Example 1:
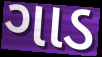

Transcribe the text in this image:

ગાડ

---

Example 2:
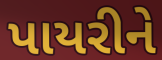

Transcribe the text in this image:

પાયરીને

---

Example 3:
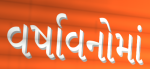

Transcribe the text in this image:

વર્ષાવનોમાં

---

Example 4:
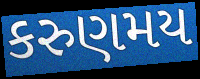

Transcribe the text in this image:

કરુણમય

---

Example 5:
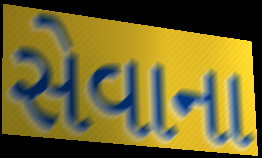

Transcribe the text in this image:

સેવાના